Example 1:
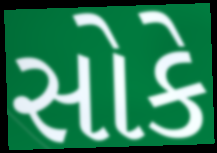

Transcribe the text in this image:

સોકે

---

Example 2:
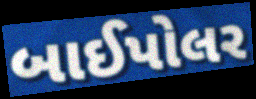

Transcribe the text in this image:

બાઈપોલર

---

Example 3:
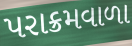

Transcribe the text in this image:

પરાક્રમવાળા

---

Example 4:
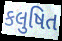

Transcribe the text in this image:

કલુષિત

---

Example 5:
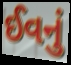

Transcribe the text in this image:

ઈવનું